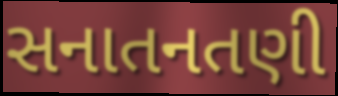
સનાતનતણી